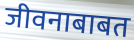
जीवनाबाबत